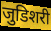
जुडिशरी